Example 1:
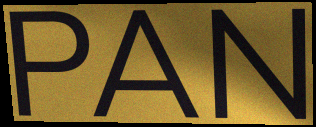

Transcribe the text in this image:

PAN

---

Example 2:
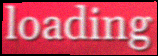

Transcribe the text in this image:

loading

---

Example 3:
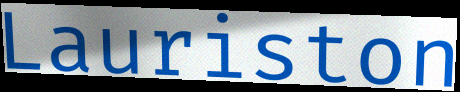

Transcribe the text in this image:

Lauriston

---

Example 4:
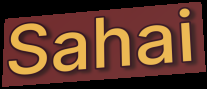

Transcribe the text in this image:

Sahai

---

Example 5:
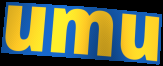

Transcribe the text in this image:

umu